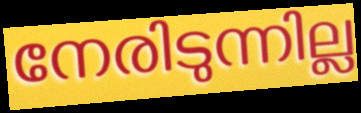
നേരിടുന്നില്ല